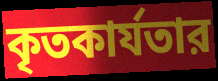
কৃতকার্যতার